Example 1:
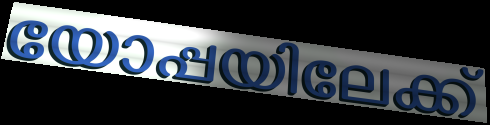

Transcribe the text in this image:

യോപ്പയിലേക്ക്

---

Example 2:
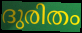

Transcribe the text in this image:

ദുരിതം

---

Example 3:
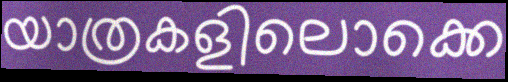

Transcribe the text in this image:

യാത്രകളിലൊക്കെ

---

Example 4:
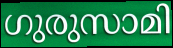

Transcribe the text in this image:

ഗുരുസാമി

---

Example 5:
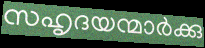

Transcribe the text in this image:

സഹൃദയന്മാർക്കു